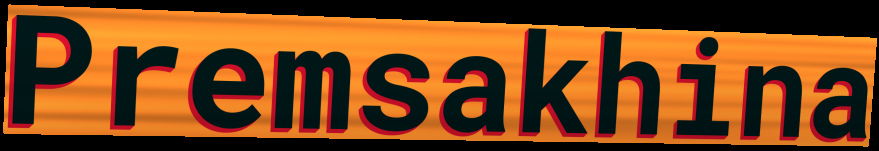
Premsakhina